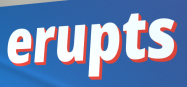
erupts